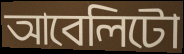
আবেলিটো